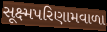
સૂક્ષ્મપરિણામવાળા